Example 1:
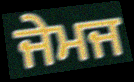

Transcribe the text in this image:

ਜੇਮਜ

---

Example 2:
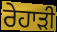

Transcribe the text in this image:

ਰੇਹਾੜੀ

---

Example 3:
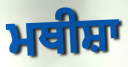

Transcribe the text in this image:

ਮਥੀਸ਼ਾ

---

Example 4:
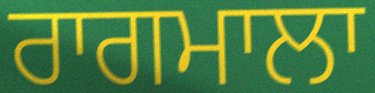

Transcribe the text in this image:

ਰਾਗਮਾਲਾ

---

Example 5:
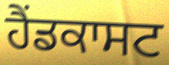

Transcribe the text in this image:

ਹੈਂਡਕਾਸਟ